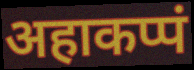
अहाकप्पं